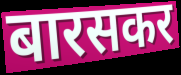
बारसकर